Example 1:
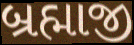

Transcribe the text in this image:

બ્રહ્માજી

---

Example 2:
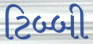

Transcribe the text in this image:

ટિબ્બી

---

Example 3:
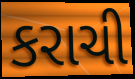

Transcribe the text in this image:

કરાચી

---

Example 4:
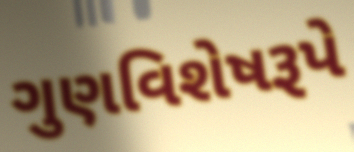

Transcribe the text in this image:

ગુણવિશેષરૂપે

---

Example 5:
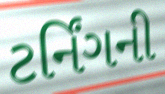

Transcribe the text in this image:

ટર્નિંગની